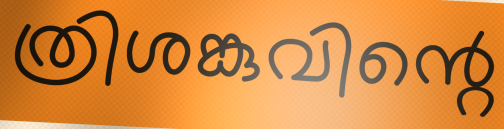
ത്രിശങ്കുവിന്റെ